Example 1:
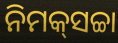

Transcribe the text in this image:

ନିମକ୍‍ସଚ୍ଚା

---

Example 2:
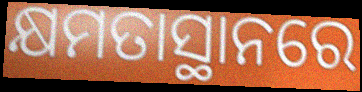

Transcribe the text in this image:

କ୍ଷମତାସ୍ଥାନରେ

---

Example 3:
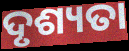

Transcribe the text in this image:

ଦୃଶ୍ୟତା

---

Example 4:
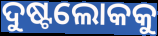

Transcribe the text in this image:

ଦୁଷ୍ଟଲୋକକୁ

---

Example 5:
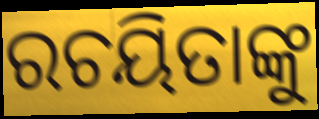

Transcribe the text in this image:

ରଚୟିତାଙ୍କୁ